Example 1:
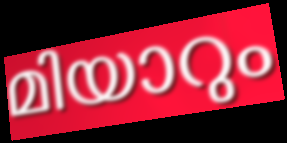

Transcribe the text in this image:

മിയാറും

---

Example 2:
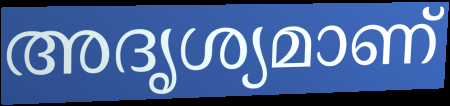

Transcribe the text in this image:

അദൃശ്യമാണ്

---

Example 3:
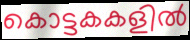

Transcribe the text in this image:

കൊട്ടകകളിൽ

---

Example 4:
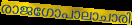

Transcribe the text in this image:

രാജഗോപാലാചാരി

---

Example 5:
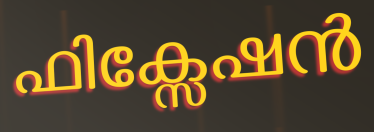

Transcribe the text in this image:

ഫിക്സേഷൻ